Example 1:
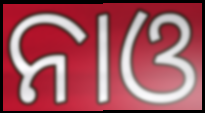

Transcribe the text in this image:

ନାଓ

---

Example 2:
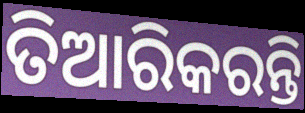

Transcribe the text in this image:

ତିଆରିକରନ୍ତି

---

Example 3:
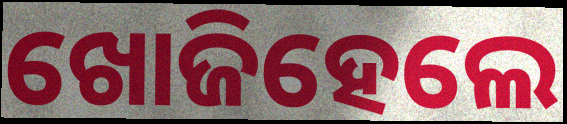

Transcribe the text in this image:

ଖୋଜିହେଲେ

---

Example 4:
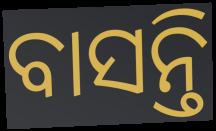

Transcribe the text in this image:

ବାସନ୍ତି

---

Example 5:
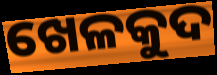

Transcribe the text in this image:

ଖେଳକୁଦ